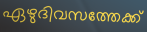
ഏഴുദിവസത്തേക്ക്